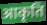
आकृति